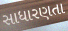
સાધારણતા